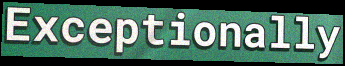
Exceptionally